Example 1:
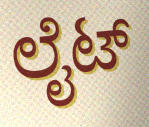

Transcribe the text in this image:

ಲೈಟ್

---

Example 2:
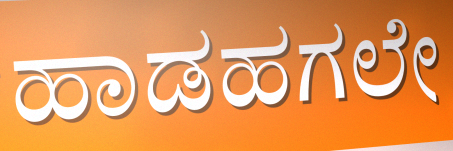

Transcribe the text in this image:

ಹಾಡಹಗಲೇ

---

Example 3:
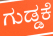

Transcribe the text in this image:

ಗುಡ್ಡಕೆ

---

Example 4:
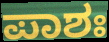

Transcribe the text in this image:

ಪಾಶಃ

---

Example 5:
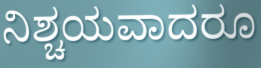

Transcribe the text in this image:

ನಿಶ್ಚಯವಾದರೂ